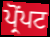
ਪ੍ਰੋਂਪਟ